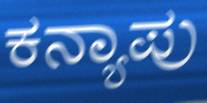
ಕನ್ಯಾಪು